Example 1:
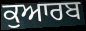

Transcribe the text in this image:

ਕੁਆਰਬ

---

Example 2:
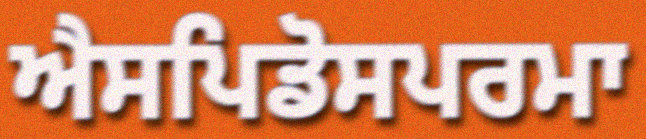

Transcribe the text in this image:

ਐਸਪਿਡੋਸਪਰਮਾ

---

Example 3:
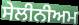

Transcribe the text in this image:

ਸੇਲੀਨੀਅਮ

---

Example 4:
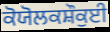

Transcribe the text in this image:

ਕੋਯੋਲਕਸ਼ੌਕੁਈ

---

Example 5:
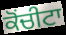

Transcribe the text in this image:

ਕੋਂਚੀਟਾ